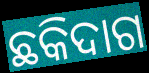
ଛକିଦାଗ